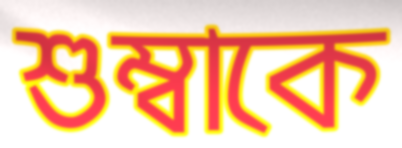
শুম্বাকে